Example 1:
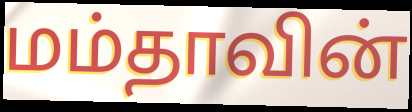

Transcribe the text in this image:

மம்தாவின்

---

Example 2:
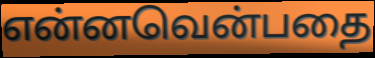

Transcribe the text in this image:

என்னவென்பதை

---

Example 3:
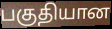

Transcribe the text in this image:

பகுதியான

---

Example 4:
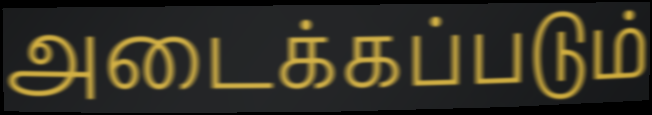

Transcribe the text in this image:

அடைக்கப்படும்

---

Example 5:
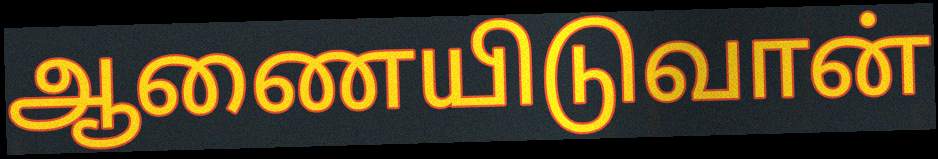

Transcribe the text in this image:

ஆணையிடுவான்